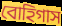
বোহিগাস